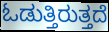
ಓಡುತ್ತಿರುತ್ತದೆ